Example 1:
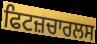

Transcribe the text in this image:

ਫਿਟਜ਼ਚਾਰਲਸ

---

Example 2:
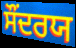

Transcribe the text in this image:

ਸੌਂਦਰਯ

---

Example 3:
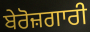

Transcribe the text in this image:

ਬੇਰੋਜ਼ਗਾਰੀ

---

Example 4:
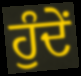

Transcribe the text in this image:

ਹੁੰਦੇਂ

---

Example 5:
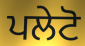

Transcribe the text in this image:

ਪਲੇਟੋ